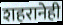
शहरानेही